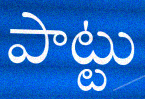
పాట్టు